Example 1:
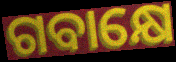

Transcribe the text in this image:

ଗବାକ୍ଷେ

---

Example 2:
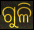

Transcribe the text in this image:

ଗୁଳି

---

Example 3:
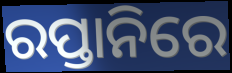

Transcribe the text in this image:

ରପ୍ତାନିରେ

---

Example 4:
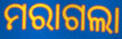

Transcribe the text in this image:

ମରାଗଲା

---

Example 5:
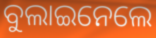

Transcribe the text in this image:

ବୁଲାଇନେଲେ